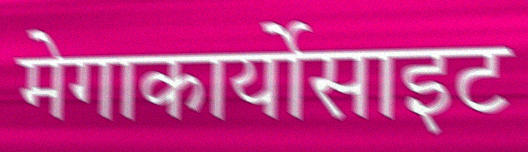
मेगाकार्योसाइट